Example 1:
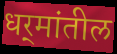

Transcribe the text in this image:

धर्मांतील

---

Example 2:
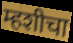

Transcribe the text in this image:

म्हशीचा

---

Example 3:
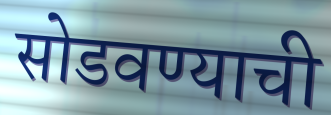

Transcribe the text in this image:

सोडवण्याची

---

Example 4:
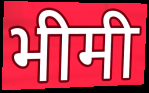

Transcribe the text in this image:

भीमी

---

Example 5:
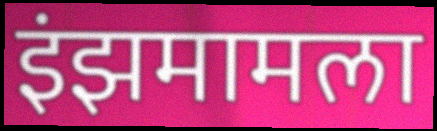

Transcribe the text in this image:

इंझमामला